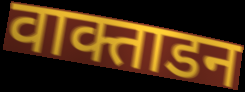
वाक्ताडन